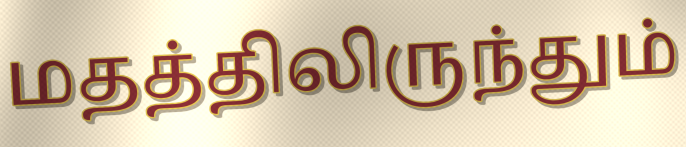
மதத்திலிருந்தும்